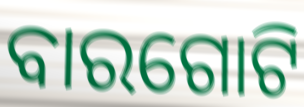
ବାରଗୋଟି